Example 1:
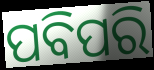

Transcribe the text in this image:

ପବିପରି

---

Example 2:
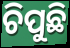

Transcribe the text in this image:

ଚିପୁଛି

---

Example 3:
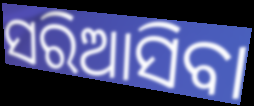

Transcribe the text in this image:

ସରିଆସିବା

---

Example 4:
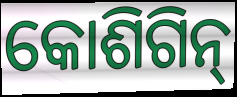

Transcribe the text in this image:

କୋଶିଗିନ୍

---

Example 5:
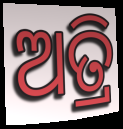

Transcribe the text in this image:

ଅତ୍ରି